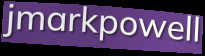
jmarkpowell